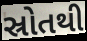
સ્રોતથી